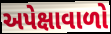
અપેક્ષાવાળો